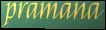
pramana